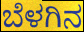
ಬೆಳಗಿನ